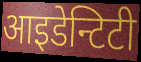
आइडेन्टिटी